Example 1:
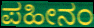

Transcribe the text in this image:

ಪಹೀನಂ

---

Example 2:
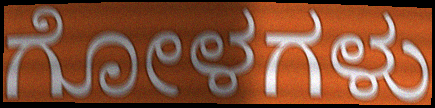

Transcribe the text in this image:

ಗೋಳಗಳು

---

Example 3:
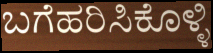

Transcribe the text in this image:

ಬಗೆಹರಿಸಿಕೊಳ್ಳಿ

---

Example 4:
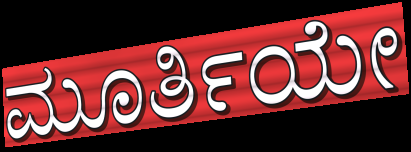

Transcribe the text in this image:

ಮೂರ್ತಿಯೇ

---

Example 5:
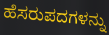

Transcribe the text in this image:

ಹೆಸರುಪದಗಳನ್ನು